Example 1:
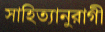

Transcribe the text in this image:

সাহিত্যানুরাগী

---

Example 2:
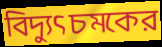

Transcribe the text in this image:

বিদ্যুৎচমকের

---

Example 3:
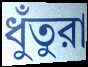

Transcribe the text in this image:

ধুঁতুরা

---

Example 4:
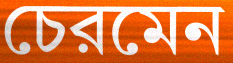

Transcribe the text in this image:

চেরমেন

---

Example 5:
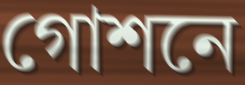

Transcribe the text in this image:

গোশনে